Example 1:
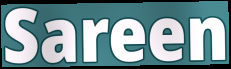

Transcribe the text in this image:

Sareen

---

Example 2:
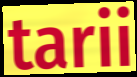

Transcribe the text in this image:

tarii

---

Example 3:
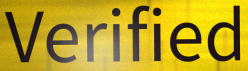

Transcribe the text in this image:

Verified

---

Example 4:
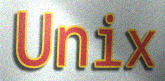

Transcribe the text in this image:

Unix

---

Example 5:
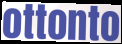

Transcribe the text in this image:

ottonto